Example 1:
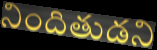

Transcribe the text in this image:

నిందితుడని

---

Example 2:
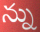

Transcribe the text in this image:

న్ను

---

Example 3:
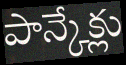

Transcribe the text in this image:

పాన్కేక్లు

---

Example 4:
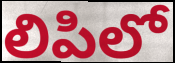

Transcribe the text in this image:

లిపిలో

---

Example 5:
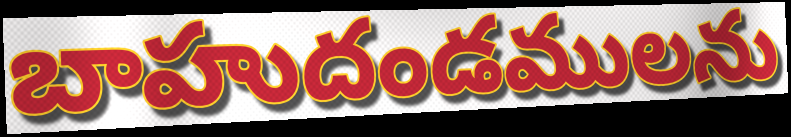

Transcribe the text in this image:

బాహుదండములను